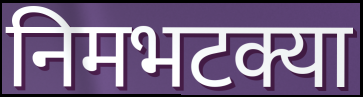
निमभटक्या